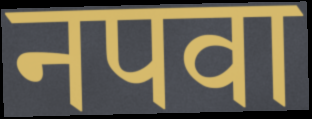
नपवा